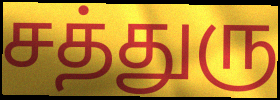
சத்துரு